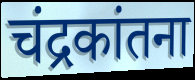
चंद्रकांतना